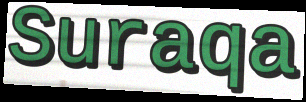
Suraqa